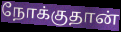
நோக்குதான்